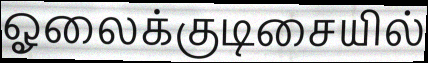
ஓலைக்குடிசையில்